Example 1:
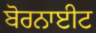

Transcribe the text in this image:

ਬੋਰਨਾਈਟ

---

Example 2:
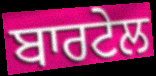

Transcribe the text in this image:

ਬਾਰਟੇਲ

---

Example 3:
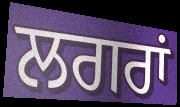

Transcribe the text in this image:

ਲਗਰਾਂ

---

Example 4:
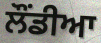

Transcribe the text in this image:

ਲੌਂਡੀਆ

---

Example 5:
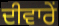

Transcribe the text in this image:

ਦੀਵਾਰੇਂ